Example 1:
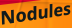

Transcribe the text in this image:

Nodules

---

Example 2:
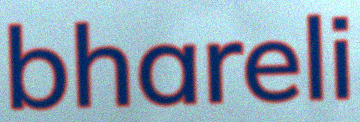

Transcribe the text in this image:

bhareli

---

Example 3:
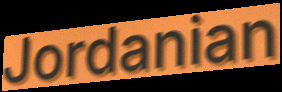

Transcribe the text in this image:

Jordanian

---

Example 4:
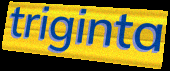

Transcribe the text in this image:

triginta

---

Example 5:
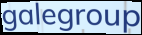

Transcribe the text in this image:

galegroup